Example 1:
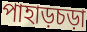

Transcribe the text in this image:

পাহাড়চড়া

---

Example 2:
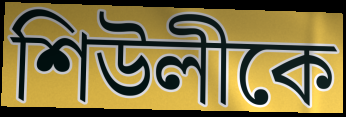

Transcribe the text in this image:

শিউলীকে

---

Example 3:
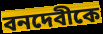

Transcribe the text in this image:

বনদেবীকে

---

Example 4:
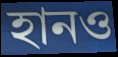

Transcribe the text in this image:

হানও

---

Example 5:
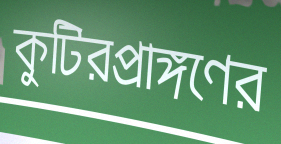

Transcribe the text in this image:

কুটিরপ্রাঙ্গণের